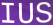
IUS